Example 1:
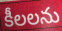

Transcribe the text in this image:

కీలలను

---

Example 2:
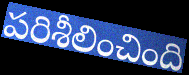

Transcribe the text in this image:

పరిశీలించింది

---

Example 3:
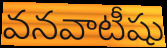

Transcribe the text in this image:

వనవాటీషు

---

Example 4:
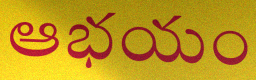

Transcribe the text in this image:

ఆభయం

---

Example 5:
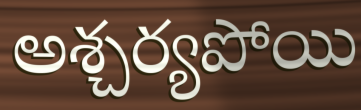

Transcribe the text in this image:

అశ్చర్యపోయి